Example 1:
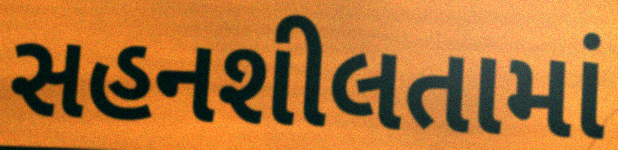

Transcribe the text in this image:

સહનશીલતામાં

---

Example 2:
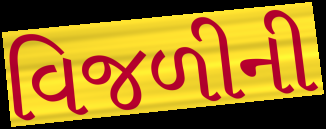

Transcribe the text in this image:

વિજળીની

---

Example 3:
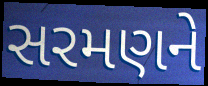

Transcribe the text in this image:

સરમણને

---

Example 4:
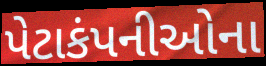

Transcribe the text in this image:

પેટાકંપનીઓના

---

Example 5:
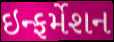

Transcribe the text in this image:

ઇન્ફર્મેશન